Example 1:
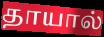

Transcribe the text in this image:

தாயால்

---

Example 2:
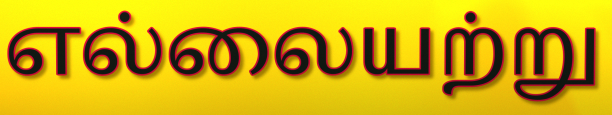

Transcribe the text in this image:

எல்லையற்று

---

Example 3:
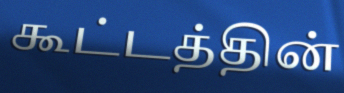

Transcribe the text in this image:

கூட்டத்தின்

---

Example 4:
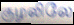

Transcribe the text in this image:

குழலிலே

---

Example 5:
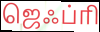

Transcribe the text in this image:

ஜெஃப்ரி